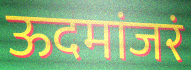
ऊदमांजरं